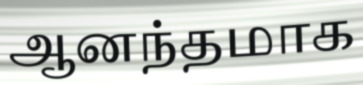
ஆனந்தமாக